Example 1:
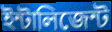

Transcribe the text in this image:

ইন্টালিজেন্ট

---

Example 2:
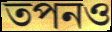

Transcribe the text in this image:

তপনও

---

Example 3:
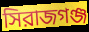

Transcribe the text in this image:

সিরাজগঞ্জ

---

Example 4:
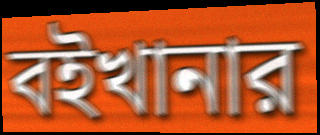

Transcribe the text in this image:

বইখানার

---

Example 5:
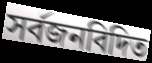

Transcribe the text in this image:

সর্বজনবিদিত